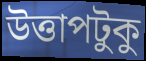
উত্তাপটুকু